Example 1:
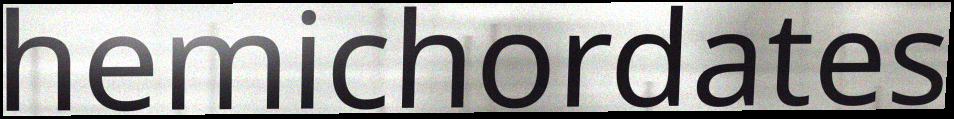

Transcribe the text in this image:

hemichordates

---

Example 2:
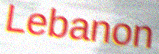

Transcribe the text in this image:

Lebanon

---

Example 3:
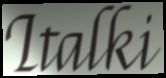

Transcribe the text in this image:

Italki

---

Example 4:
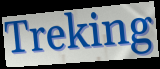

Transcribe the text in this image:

Treking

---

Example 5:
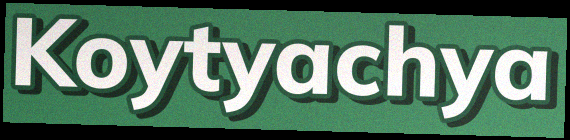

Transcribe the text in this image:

Koytyachya